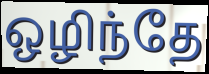
ஒழிந்தே